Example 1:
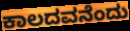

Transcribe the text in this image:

ಕಾಲದವನೆಂದು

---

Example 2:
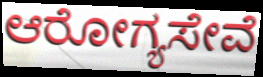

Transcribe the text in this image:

ಆರೋಗ್ಯಸೇವೆ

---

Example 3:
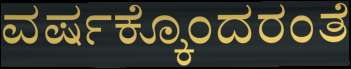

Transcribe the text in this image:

ವರ್ಷಕ್ಕೊಂದರಂತೆ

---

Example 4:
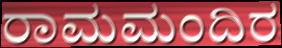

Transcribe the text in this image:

ರಾಮಮಂದಿರ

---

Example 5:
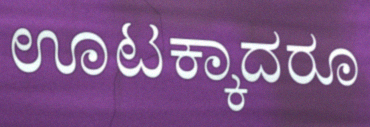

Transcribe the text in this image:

ಊಟಕ್ಕಾದರೂ